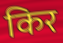
किर